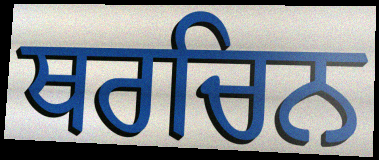
ਥਰਚਿਨ